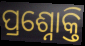
ପ୍ରଶ୍ନୋକ୍ତି